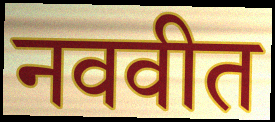
नववीत